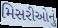
મિસરીઓનું